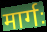
मार्गः